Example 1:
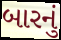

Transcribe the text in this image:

બારનું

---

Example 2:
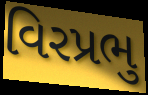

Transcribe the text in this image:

વિરપ્રભુ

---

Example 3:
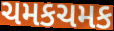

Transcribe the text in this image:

ચમકચમક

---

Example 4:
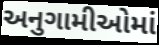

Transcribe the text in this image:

અનુગામીઓમાં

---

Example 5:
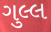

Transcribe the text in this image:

ગુલ્લ